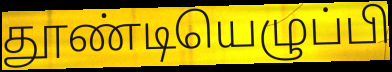
தூண்டியெழுப்பி